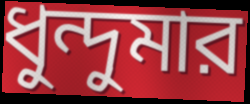
ধুন্দুমার